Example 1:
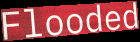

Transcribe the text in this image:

Flooded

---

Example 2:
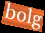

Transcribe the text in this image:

bolg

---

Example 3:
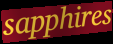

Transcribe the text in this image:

sapphires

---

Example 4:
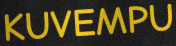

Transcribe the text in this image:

KUVEMPU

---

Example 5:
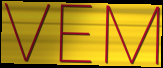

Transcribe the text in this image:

VEM